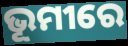
ଭୂମୀରେ